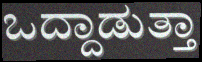
ಒದ್ದಾಡುತ್ತಾ